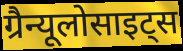
ग्रैन्यूलोसाइट्स